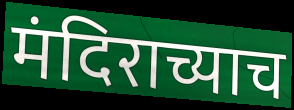
मंदिराच्याच